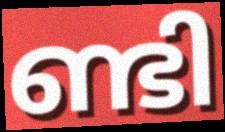
ണ്ടി